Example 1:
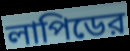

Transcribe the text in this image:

লাপিডের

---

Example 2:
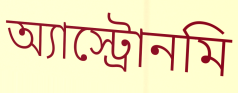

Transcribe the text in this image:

অ্যাস্ট্রোনমি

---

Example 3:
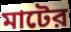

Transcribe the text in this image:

মাটের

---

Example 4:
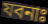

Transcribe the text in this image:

যবনাঃ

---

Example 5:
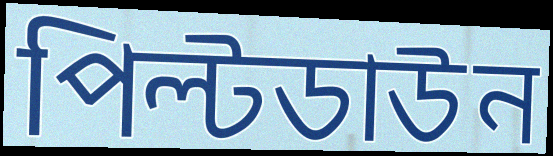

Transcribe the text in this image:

পিল্টডাউন